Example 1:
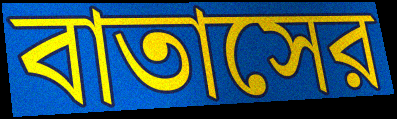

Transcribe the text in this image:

বাতাসের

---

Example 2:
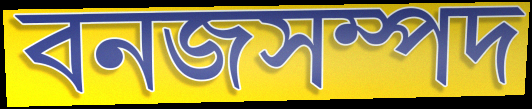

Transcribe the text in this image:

বনজসম্পদ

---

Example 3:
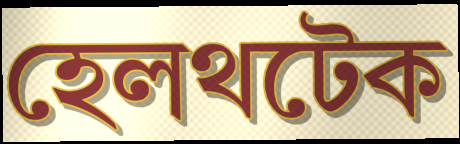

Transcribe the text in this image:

হেলথটেক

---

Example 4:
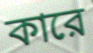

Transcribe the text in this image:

কারে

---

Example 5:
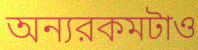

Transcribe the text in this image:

অন্যরকমটাও